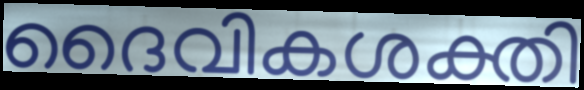
ദൈവികശക്തി